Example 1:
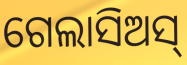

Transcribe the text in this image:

ଗେଲାସିଅସ୍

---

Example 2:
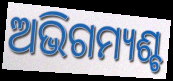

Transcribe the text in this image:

ଅଭିଗମ୍ୟଶ୍ଚ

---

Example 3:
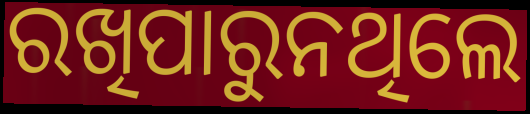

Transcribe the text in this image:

ରଖିପାରୁନଥିଲେ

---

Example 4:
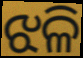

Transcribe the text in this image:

ଝଳି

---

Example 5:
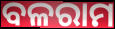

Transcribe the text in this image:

ବଳରାମ